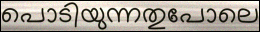
പൊടിയുന്നതുപോലെ